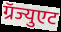
ग्रॅज्युएट